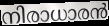
നിരാധാരൻ